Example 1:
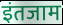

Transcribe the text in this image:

इंतजाम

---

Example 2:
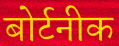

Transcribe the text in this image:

बोर्टनीक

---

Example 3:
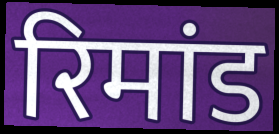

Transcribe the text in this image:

रिमांड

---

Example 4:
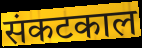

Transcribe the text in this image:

संकटकाल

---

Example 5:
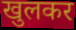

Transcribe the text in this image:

खुलकर